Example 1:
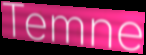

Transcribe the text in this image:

Temne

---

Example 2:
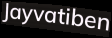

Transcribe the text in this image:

Jayvatiben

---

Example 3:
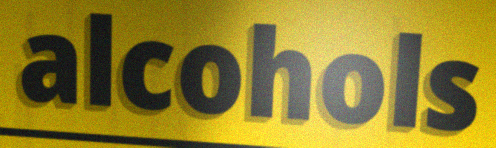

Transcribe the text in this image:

alcohols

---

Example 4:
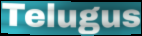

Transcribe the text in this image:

Telugus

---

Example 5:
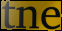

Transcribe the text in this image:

tne